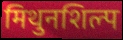
मिथुनशिल्प